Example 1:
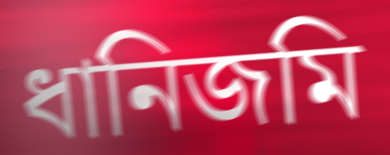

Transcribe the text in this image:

ধানিজমি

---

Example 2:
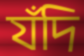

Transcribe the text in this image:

যঁদি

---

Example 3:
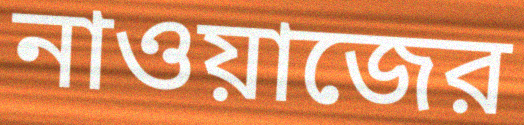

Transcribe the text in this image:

নাওয়াজের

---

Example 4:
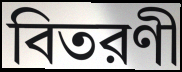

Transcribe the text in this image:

বিতরণী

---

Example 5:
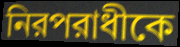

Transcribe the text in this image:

নিরপরাধীকে